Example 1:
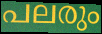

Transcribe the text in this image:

പലരും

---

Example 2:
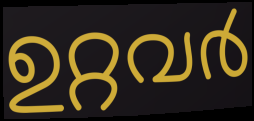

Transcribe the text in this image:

ഉറ്റവർ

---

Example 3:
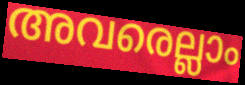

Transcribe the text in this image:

അവരെല്ലാം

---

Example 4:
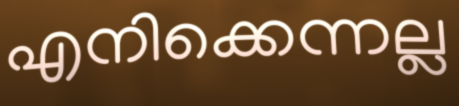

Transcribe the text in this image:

എനിക്കെന്നല്ല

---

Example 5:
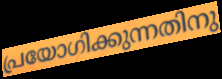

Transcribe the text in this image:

പ്രയോഗിക്കുന്നതിനു